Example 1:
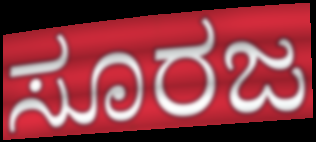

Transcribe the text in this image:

ಸೂರಜ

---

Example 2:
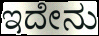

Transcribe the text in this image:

ಇದೇನು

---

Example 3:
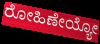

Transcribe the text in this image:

ರೋಹಿಣೇಯ್ಯೋ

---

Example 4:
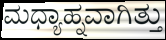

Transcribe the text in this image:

ಮಧ್ಯಾಹ್ನವಾಗಿತ್ತು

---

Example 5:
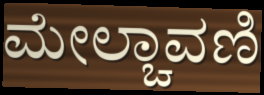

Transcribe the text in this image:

ಮೇಲ್ಚಾವಣಿ